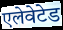
एलेवेटेड